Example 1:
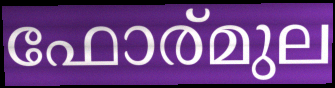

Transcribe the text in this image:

ഫോര്മുല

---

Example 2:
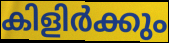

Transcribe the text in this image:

കിളിർക്കും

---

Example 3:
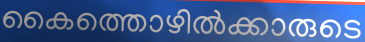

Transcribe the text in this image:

കൈത്തൊഴിൽക്കാരുടെ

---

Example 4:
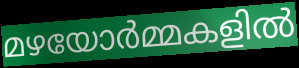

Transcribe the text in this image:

മഴയോർമ്മകളിൽ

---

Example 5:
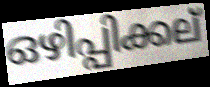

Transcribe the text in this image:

ഒഴിപ്പിക്കല്